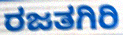
ರಜತಗಿರಿ